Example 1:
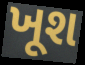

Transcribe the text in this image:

ખૂશ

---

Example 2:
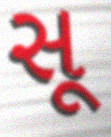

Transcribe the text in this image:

સૂ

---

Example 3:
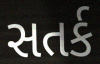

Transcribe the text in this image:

સતર્ક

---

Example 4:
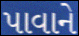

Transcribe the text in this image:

પાવાને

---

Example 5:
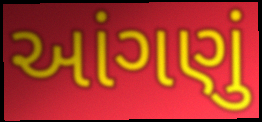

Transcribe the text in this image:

આંગણું